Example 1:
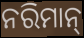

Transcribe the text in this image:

ନରିମାନ୍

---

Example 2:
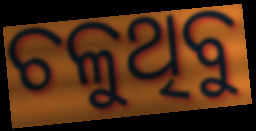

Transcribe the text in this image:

ଚଳୁଥିବୁ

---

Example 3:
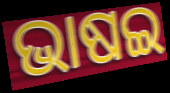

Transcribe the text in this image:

ଭାଷଇ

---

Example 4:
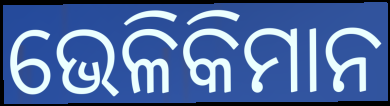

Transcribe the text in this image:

ଭେଳିକିମାନ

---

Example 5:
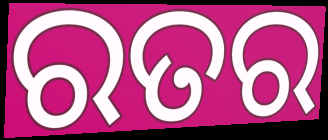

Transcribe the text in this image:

ରତର